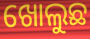
ଖୋଲୁଛ